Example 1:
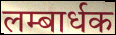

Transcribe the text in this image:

लम्बार्धक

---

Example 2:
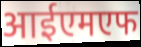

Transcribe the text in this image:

आईएमएफ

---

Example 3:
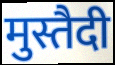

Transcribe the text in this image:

मुस्तैदी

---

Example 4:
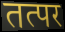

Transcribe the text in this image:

तत्पर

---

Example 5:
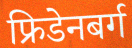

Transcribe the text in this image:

फ्रिडेनबर्ग